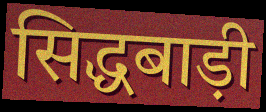
सिद्धबाड़ी